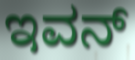
ಇವನ್